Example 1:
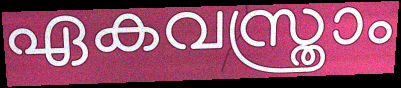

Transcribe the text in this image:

ഏകവസ്ത്രാം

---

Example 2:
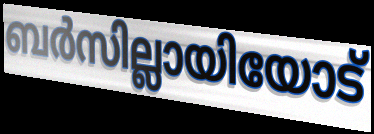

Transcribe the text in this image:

ബർസില്ലായിയോട്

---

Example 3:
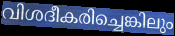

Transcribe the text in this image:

വിശദീകരിച്ചെങ്കിലും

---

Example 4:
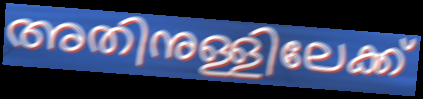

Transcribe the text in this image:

അതിനുള്ളിലേക്ക്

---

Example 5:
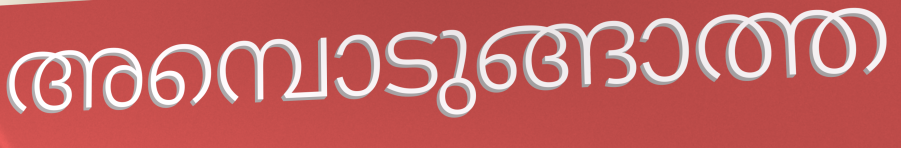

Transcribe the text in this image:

അമ്പൊടുങ്ങാത്ത